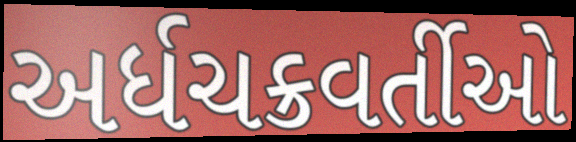
અર્ધચક્રવર્તીઓ